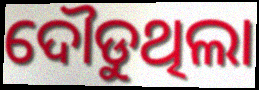
ଦୌଡୁଥିଲା